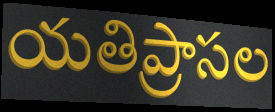
యతిప్రాసల